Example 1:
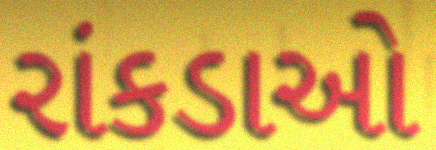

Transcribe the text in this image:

રાંકડાઓ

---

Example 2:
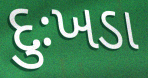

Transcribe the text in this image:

દુઃખડા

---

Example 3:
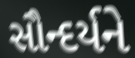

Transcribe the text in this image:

સૌન્દર્યને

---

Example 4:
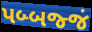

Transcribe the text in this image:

પબ્બજ્જં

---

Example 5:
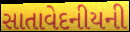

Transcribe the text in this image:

સાતાવેદનીયની